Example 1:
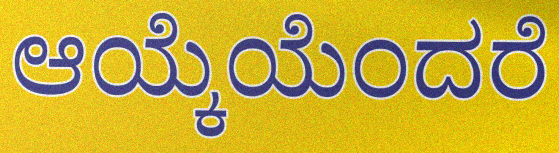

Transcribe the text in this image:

ಆಯ್ಕೆಯೆಂದರೆ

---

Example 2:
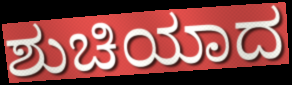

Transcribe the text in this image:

ಶುಚಿಯಾದ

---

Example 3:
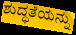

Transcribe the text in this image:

ಶುದ್ಧತೆಯನ್ನು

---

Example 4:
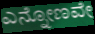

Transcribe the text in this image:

ಎನ್ನೋಣವೇ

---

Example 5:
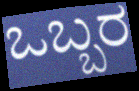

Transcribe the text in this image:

ಒಬ್ಬರ